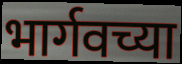
भार्गवच्या